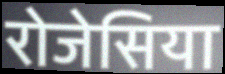
रोजेसिया